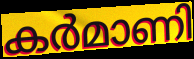
കർമാണി